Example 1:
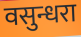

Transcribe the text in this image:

वसुन्धरा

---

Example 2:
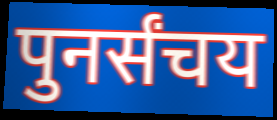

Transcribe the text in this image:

पुनर्संचय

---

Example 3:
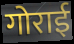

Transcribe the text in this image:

गोराई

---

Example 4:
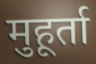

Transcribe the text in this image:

मुहूर्ता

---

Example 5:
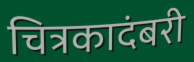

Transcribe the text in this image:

चित्रकादंबरी